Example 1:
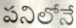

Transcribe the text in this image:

పనిలోనే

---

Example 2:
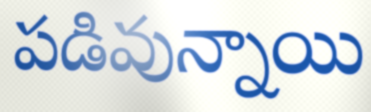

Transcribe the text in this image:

పడివున్నాయి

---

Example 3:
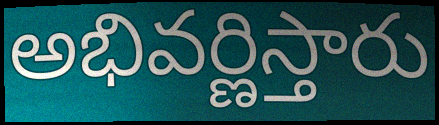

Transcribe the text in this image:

అభివర్ణిస్తారు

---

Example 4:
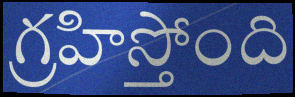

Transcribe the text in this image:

గ్రహిస్తోంది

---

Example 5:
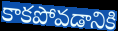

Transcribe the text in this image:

కాకపోవడానికి